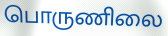
பொருணிலை